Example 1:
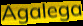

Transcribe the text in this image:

Agalega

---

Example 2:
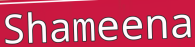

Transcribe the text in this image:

Shameena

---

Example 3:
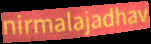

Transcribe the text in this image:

nirmalajadhav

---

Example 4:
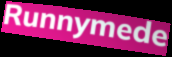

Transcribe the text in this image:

Runnymede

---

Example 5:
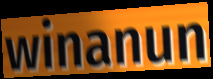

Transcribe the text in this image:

winanun